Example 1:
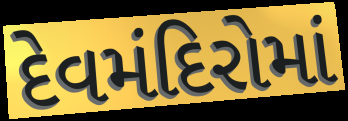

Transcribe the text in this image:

દેવમંદિરોમાં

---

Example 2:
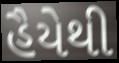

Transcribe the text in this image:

હૈયેથી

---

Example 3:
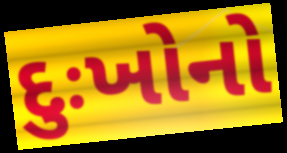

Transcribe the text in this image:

દુઃખોનો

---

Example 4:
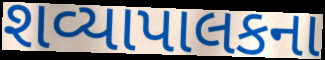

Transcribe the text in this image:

શવ્યાપાલકના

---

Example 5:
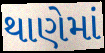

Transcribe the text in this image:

થાણેમાં